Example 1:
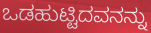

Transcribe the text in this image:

ಒಡಹುಟ್ಟಿದವನನ್ನು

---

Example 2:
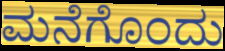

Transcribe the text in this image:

ಮನೆಗೊಂದು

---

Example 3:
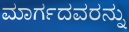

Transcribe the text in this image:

ಮಾರ್ಗದವರನ್ನು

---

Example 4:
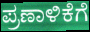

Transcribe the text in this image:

ಪ್ರಣಾಳಿಕೆಗೆ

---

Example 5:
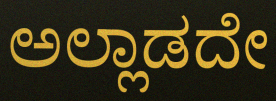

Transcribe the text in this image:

ಅಲ್ಲಾಡದೇ